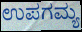
ಉಪಗಮ್ಯ